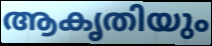
ആകൃതിയും